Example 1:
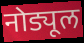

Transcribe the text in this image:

नोड्यूल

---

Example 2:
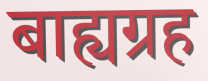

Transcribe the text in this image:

बाह्यग्रह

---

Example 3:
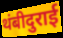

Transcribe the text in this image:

थंबीदुराई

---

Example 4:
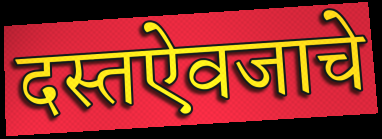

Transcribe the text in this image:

दस्तऐवजाचे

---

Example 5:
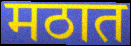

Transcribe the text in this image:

मठात